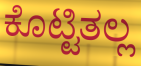
ಕೊಟ್ಟಿತಲ್ಲ